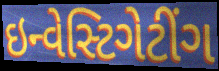
ઇન્વેસ્ટિગેટીંગ